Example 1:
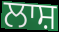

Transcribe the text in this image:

ਲਾਸ਼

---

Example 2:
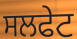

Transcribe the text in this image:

ਸਲਫੇਟ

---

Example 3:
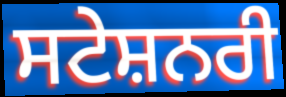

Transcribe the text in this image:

ਸਟੇਸ਼ਨਰੀ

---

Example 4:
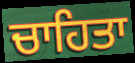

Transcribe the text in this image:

ਚਾਹਿਤਾ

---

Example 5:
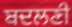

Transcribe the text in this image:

ਬਦਲਣੀ